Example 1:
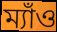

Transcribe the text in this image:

ম্যাঁও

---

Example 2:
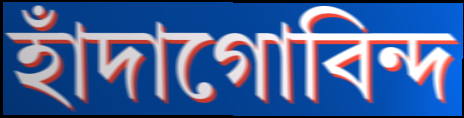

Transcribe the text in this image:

হাঁদাগোবিন্দ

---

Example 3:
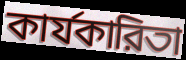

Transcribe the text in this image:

কার্যকারিতা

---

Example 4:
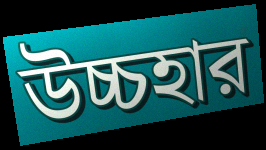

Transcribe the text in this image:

উচ্চহার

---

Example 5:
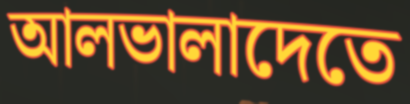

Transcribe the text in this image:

আলভালাদেতে